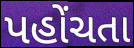
પહોંચતા